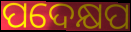
ପଦେକ୍ଷପ